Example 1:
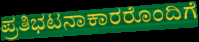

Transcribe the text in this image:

ಪ್ರತಿಭಟನಾಕಾರರೊಂದಿಗೆ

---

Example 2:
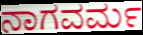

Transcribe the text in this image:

ನಾಗವರ್ಮ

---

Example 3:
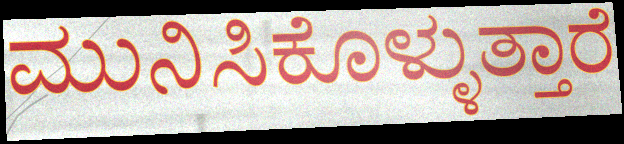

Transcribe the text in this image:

ಮುನಿಸಿಕೊಳ್ಳುತ್ತಾರೆ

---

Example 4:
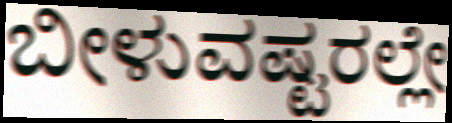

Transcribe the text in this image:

ಬೀಳುವಷ್ಟರಲ್ಲೇ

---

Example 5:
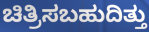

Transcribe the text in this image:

ಚಿತ್ರಿಸಬಹುದಿತ್ತು